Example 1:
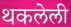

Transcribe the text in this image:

थकलेली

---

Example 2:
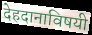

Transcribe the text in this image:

देहदानाविषयी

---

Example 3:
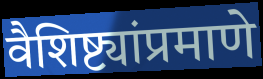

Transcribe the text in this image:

वैशिष्ट्यांप्रमाणे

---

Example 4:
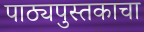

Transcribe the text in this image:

पाठ्यपुस्तकाचा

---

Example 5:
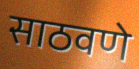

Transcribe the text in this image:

साठवणे